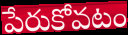
పేరుకోవటం